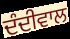
ਦੰਦੀਵਾਲ